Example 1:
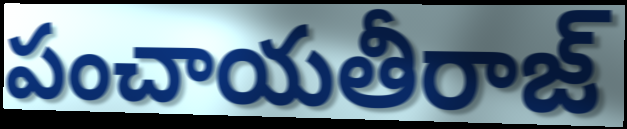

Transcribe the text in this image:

పంచాయతీరాజ్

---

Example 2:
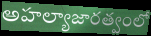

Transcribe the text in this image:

అహల్యాజారత్వంలో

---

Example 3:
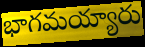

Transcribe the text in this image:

భాగమయ్యారు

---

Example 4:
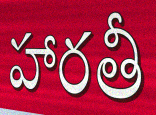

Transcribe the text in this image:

హారతీ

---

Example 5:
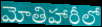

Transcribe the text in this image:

మోతిహారీలో